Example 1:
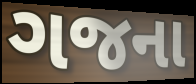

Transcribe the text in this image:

ગજના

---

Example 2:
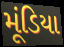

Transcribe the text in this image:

મૂંડિયા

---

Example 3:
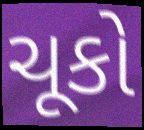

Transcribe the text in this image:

ચૂકો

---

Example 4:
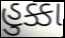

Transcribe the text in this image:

હુક્કા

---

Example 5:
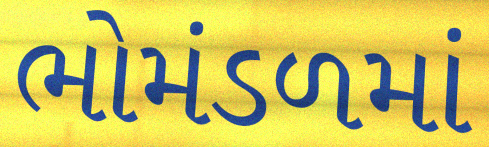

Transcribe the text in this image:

ભોમંડળમાં